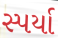
સ્પર્યા